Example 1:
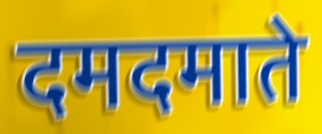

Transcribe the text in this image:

दमदमाते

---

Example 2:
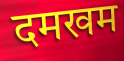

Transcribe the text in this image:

दमखम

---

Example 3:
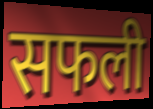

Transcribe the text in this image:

सफली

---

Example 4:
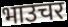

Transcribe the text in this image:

भाउचर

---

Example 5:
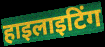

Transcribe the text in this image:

हाइलाइटिंग